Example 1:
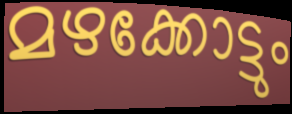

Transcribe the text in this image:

മഴക്കോട്ടും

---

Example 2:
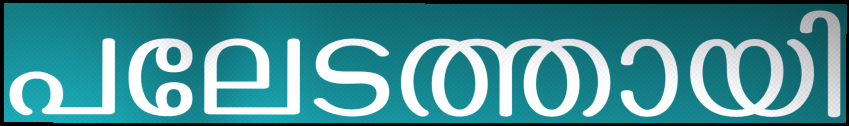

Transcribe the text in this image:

പലേടത്തായി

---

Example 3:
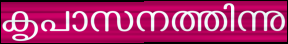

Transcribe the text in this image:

കൃപാസനത്തിന്നു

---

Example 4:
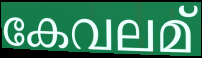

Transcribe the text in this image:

കേവലമ്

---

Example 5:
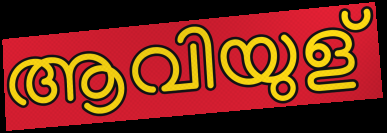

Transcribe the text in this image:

ആവിയുള്